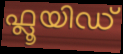
ഫ്ലൂയിഡ്